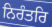
ਨਿਰੰਤਰਿ